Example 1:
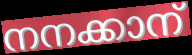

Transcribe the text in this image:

നനക്കാന്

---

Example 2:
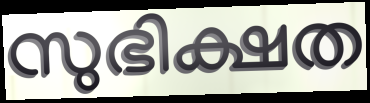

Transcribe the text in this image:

സുഭിക്ഷത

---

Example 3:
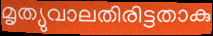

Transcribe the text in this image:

മൃത്യുവാലതിരിട്ടതാകു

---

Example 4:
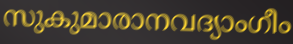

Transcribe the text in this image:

സുകുമാരാനവദ്യാംഗീം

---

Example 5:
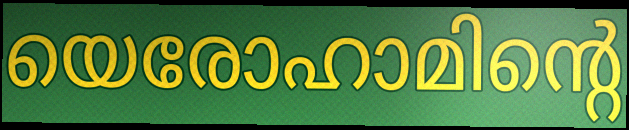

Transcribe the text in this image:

യെരോഹാമിന്റെ